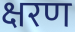
क्षरण